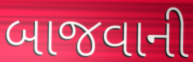
બાજવાની